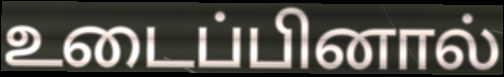
உடைப்பினால்